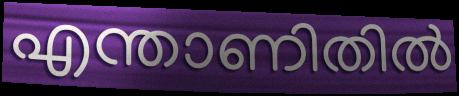
എന്താണിതിൽ